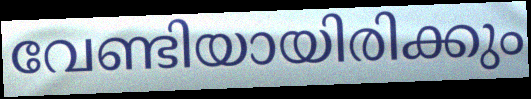
വേണ്ടിയായിരിക്കും